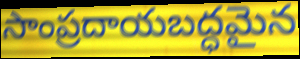
సాంప్రదాయబద్ధమైన